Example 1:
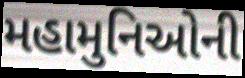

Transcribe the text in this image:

મહામુનિઓની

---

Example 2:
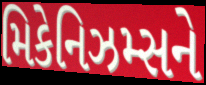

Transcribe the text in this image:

મિકેનિઝમ્સને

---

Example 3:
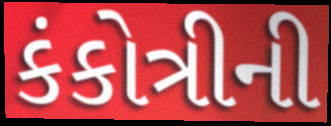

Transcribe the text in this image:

કંકોત્રીની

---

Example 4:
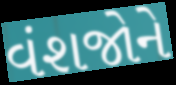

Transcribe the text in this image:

વંશજોને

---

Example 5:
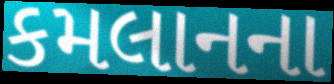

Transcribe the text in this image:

કમલાનના